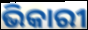
ଭିକାରୀ